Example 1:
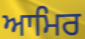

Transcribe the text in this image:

ਆਮਿਰ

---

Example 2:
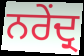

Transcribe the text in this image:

ਨਰੇਂਦ੍ਰ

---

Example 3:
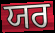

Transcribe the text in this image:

ਯਰ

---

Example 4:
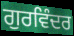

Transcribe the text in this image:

ਗੁਰਵਿੰਦਰ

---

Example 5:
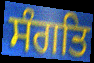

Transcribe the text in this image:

ਸੰਗਤਿ